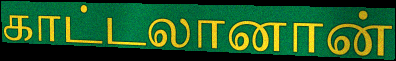
காட்டலானான்